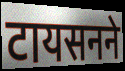
टायसनने